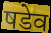
षडेव